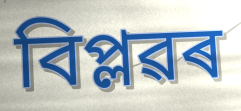
বিপ্লৱৰ